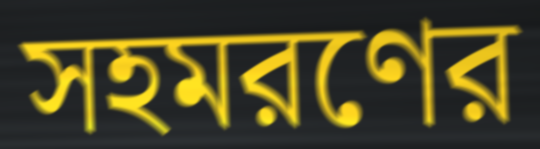
সহমরণের